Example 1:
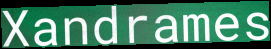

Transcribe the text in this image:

Xandrames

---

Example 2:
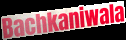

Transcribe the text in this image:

Bachkaniwala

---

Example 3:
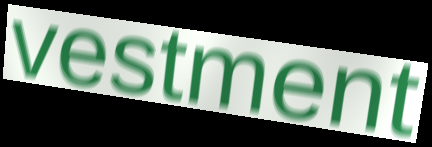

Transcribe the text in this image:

vestment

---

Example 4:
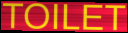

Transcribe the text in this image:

TOILET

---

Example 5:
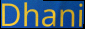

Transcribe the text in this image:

Dhani